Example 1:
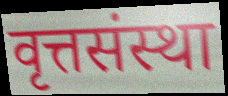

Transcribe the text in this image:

वृत्तसंस्था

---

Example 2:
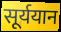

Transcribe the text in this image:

सूर्ययान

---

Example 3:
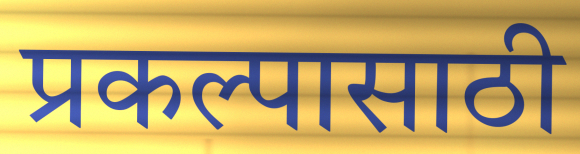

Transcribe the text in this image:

प्रकल्पासाठी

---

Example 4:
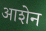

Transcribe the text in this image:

आशेन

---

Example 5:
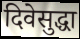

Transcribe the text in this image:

दिवेसुद्धा